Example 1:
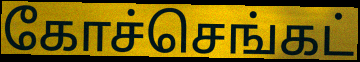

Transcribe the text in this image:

கோச்செங்கட்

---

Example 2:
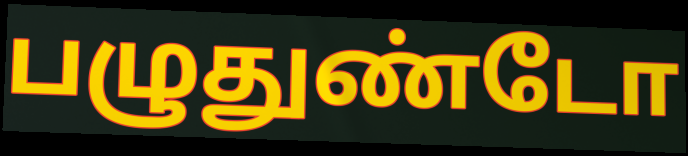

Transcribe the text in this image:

பழுதுண்டோ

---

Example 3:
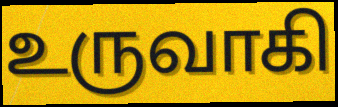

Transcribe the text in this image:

உருவாகி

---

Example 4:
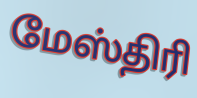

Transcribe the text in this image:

மேஸ்திரி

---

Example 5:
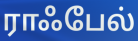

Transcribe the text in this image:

ராஃபேல்